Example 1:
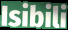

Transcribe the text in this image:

Isibili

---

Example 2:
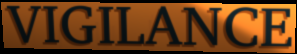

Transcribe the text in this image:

VIGILANCE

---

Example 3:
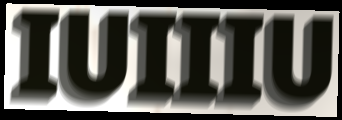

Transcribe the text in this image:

IUIIIU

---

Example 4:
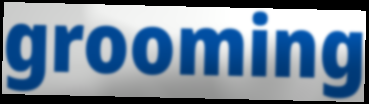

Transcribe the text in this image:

grooming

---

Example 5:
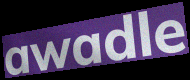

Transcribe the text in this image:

awadle